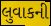
લુવાકની